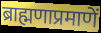
ब्राह्मणाप्रमाणें